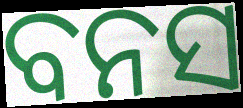
ବନସ